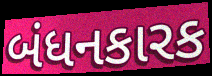
બંધનકારક